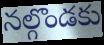
నల్గొండకు